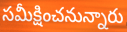
సమీక్షించనున్నారు